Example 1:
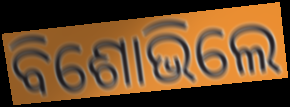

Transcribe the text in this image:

ବିଶୋଭିଲେ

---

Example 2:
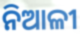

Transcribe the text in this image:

ନିଆଳୀ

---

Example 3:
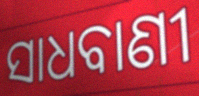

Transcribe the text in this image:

ସାଧବାଣୀ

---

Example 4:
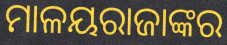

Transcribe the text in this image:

ମାଳୟରାଜାଙ୍କର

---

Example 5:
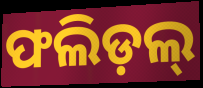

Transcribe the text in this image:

ଫଲିଡ଼ଲ୍